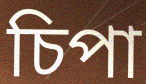
চিপা